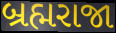
બ્રહ્મરાજા